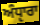
ਅੰਧੵਾਰਾ